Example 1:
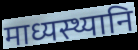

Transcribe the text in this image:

माध्यस्थ्यानि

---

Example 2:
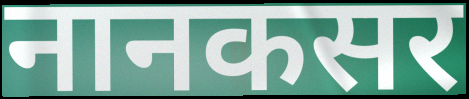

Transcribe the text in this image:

नानकसर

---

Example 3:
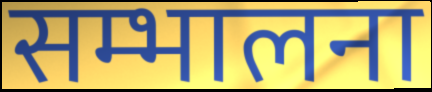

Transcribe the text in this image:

सम्भालना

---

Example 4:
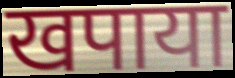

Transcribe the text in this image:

खपाया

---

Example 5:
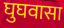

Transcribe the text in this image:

घुघवासा